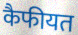
कैफीयत